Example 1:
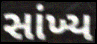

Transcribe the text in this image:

સાંખ્ય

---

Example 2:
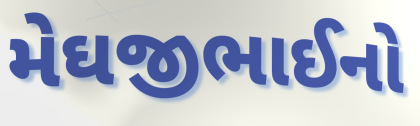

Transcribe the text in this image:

મેઘજીભાઈનો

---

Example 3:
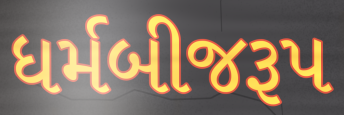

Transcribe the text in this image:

ધર્મબીજરૂપ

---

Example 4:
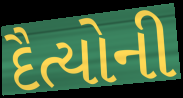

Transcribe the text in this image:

દૈત્યોની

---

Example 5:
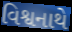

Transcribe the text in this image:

વિશ્વનાથે